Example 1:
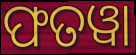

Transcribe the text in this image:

ଫତୱା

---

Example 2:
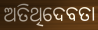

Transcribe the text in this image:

ଅତିଥିଦେବତା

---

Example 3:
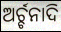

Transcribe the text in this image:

ଅର୍ଚ୍ଚନାଦି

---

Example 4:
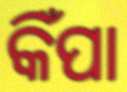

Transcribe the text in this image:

କିଁପା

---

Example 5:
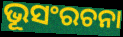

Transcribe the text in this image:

ଭୂସଂରଚନା